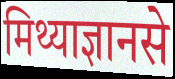
मिथ्याज्ञानसे